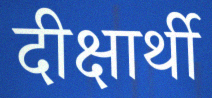
दीक्षार्थी